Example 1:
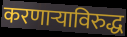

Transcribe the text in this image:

करणाऱ्याविरुद्ध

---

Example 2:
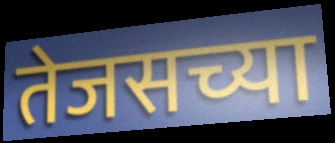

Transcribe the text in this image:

तेजसच्या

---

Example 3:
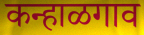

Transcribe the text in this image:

कन्हाळगाव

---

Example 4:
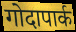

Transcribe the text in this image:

गोदापार्क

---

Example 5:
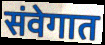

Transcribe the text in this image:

संवेगात